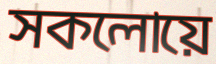
সকলোয়ে